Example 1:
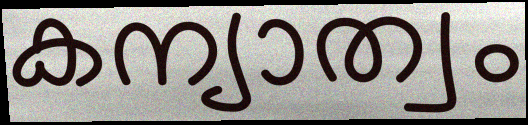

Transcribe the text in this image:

കന്യാത്വം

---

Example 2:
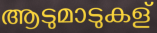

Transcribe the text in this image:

ആടുമാടുകള്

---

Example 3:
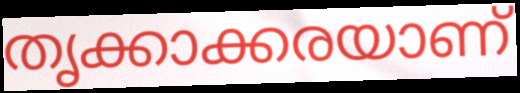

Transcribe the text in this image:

തൃക്കാക്കരയാണ്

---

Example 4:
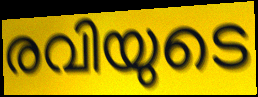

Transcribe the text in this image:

രവിയുടെ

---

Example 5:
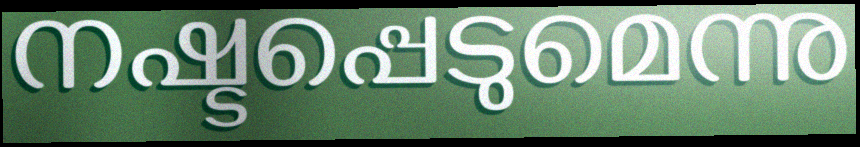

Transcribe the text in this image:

നഷ്ടപ്പെടുമെന്നു